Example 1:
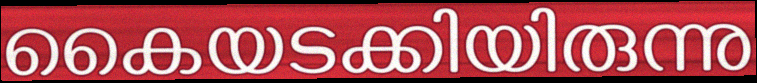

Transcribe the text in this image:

കൈയടക്കിയിരുന്നു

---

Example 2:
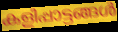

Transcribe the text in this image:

കളിപ്പാട്ടങ്ങൾ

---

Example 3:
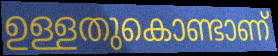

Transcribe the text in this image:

ഉള്ളതുകൊണ്ടാണ്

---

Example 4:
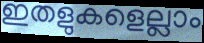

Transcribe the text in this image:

ഇതളുകളെല്ലാം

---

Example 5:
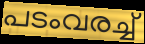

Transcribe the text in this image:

പടംവരച്ച്